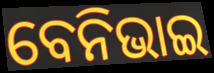
ବେନିଭାଇ